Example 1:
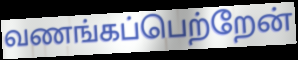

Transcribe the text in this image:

வணங்கப்பெற்றேன்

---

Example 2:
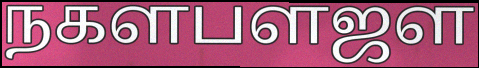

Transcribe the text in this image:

நகளபளஜள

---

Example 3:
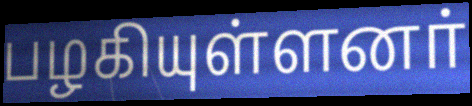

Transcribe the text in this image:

பழகியுள்ளனர்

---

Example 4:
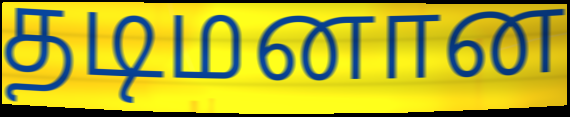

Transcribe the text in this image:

தடிமனான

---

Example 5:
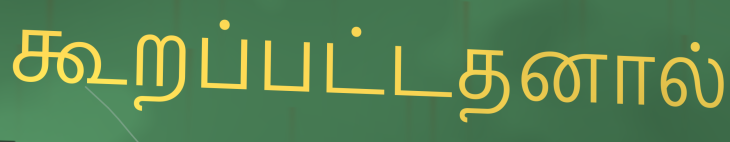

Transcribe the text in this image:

கூறப்பட்டதனால்